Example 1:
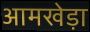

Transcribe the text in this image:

आमखेड़ा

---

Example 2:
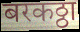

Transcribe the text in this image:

बरकठ्ठा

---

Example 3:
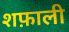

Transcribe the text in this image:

शफ़ाली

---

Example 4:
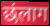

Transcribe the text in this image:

छंलाग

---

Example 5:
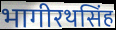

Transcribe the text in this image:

भागीरथसिंह